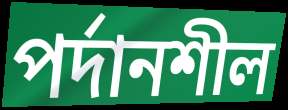
পর্দানশীল